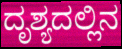
ದೃಶ್ಯದಲ್ಲಿನ